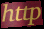
http